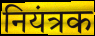
नियंत्रक